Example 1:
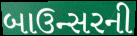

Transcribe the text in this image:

બાઉન્સરની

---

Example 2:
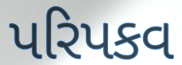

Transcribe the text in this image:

પરિપકવ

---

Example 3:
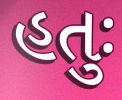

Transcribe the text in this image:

હતુઃ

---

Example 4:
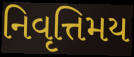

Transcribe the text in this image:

નિવૃત્તિમય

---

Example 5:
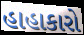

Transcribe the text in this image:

હાહાકારો